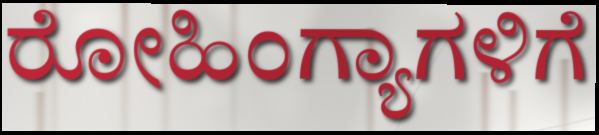
ರೋಹಿಂಗ್ಯಾಗಳಿಗೆ